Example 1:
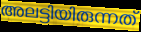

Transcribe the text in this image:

അലട്ടിയിരുന്നത്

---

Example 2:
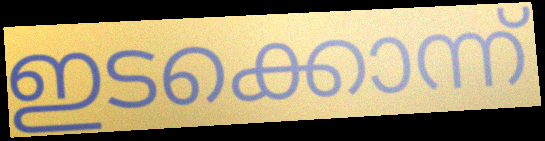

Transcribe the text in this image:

ഇടക്കൊന്ന്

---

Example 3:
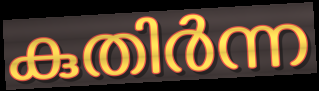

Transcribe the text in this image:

കുതിർന്ന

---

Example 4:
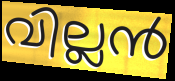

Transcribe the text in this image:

വില്ലൻ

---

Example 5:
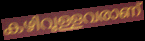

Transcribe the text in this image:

കഴിവുള്ളവരാണ്